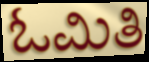
ಓಮಿತಿ